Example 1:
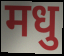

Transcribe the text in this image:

मधु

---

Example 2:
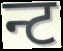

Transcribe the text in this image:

न्ट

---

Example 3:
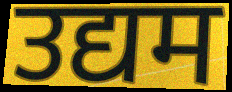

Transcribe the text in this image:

उद्यम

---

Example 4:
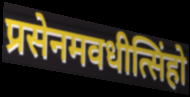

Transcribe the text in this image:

प्रसेनमवधीत्सिंहो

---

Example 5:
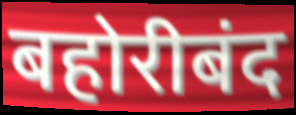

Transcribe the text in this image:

बहोरीबंद